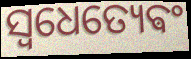
ସ୍ଵଧେତ୍ଯେଵଂ